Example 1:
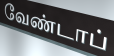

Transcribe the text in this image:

வேண்டாப்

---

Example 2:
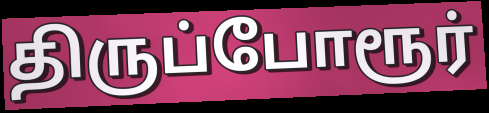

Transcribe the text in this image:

திருப்போரூர்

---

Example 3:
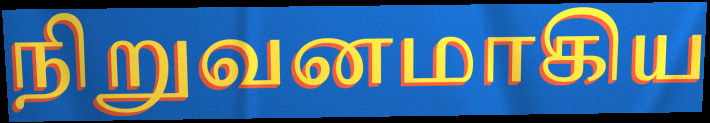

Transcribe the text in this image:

நிறுவனமாகிய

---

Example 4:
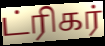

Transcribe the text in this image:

ட்ரிகர்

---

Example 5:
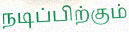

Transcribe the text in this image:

நடிப்பிற்கும்